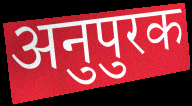
अनुपुरक